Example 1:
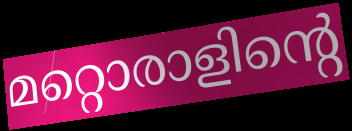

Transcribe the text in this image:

മറ്റൊരാളിന്റെ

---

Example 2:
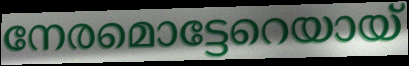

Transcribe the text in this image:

നേരമൊട്ടേറെയായ്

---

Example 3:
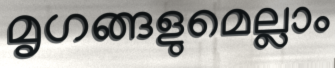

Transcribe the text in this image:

മൃഗങ്ങളുമെല്ലാം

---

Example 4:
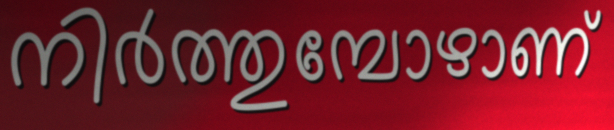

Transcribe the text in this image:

നിർത്തുമ്പോഴാണ്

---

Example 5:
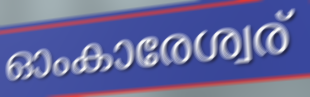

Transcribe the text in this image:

ഓംകാരേശ്വര്